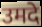
उमदे